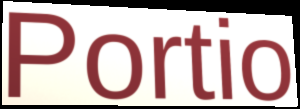
Portio